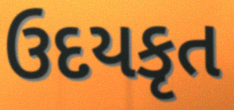
ઉદયકૃત